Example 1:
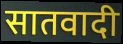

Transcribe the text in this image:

सातवादी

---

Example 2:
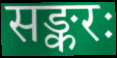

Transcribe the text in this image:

सङ्करः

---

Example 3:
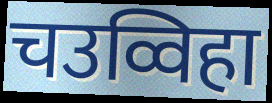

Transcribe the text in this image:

चउव्विहा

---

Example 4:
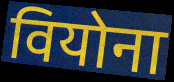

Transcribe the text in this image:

वियोना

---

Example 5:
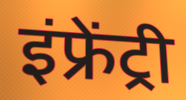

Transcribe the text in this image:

इंफ्रेंट्री